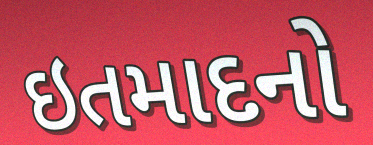
ઇતમાદનો